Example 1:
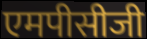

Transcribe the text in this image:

एमपीसीजी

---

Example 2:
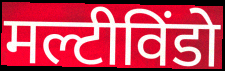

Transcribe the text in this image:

मल्टीविंडो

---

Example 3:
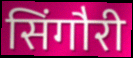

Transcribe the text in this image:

सिंगौरी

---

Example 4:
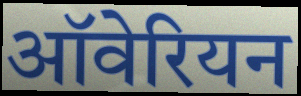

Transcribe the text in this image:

ऑवेरियन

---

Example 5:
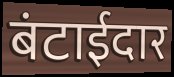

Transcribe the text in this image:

बंटाईदार